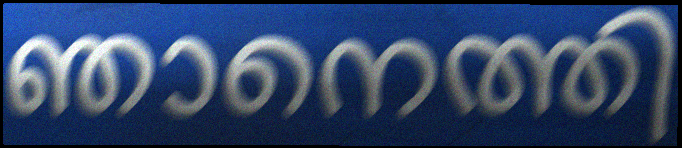
ഞാനെത്തി